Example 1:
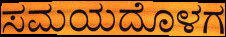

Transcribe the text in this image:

ಸಮಯದೊಳಗ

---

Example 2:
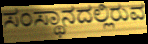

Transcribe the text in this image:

ಸಂಸ್ಥಾನದಲ್ಲಿರುವ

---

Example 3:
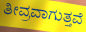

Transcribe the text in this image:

ತೀವ್ರವಾಗುತ್ತವೆ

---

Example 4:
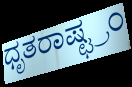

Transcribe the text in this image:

ಧೃತರಾಷ್ಟ್ರಂ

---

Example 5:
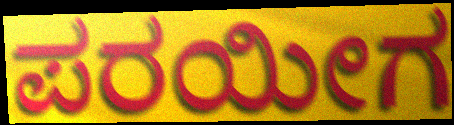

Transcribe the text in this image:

ಪರಯೀಗ